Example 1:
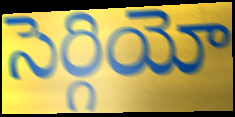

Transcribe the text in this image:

సెర్గియో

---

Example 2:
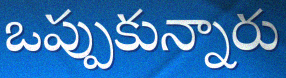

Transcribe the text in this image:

ఒప్పుకున్నారు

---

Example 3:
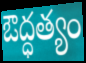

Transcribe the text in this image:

ఔద్ధత్యం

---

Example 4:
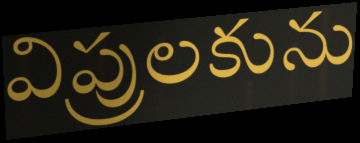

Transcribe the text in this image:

విప్రులకును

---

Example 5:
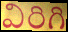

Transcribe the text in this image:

విరిగి